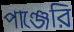
পাঞ্জেরি